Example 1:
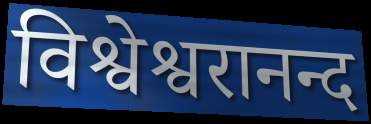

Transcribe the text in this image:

विश्वेश्वरानन्द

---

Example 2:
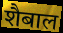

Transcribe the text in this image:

शैबाल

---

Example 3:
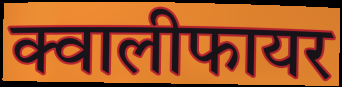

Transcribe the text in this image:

क्‍वालीफायर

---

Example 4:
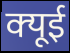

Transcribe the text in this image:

क्यूई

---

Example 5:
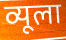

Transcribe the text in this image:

व्यूला